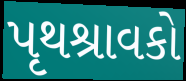
પૃથશ્રાવકો